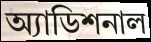
অ্যাডিশনাল